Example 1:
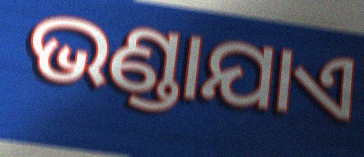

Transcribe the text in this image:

ଭଣ୍ଡାଯାଏ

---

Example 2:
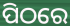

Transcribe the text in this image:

ପିଠରେ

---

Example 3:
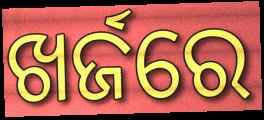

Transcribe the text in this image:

ଖର୍ଜରେ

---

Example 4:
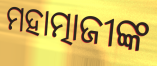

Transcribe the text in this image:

ମହାତ୍ମାଜୀଙ୍କ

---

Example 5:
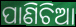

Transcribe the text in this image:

ପାଣିଚିଆ